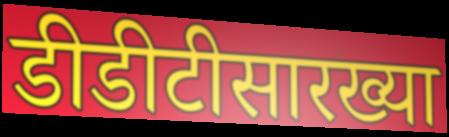
डीडीटीसारख्या